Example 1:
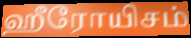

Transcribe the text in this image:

ஹீரோயிசம்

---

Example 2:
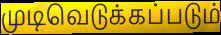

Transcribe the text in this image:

முடிவெடுக்கப்படும்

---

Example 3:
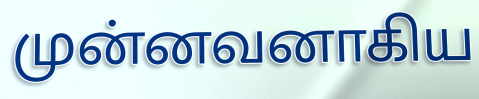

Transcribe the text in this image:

முன்னவனாகிய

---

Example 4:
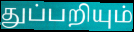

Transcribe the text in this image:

துப்பறியும்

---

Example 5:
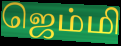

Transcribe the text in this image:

ஜெம்மி